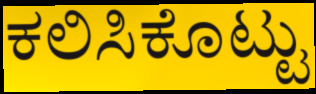
ಕಲಿಸಿಕೊಟ್ಟು